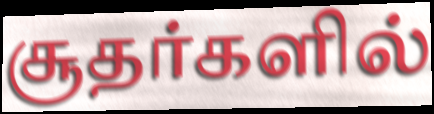
சூதர்களில்